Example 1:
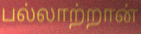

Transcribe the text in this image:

பல்லாற்றான்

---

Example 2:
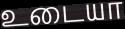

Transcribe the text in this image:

உடையா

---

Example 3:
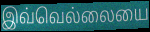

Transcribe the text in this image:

இவ்வெல்லையை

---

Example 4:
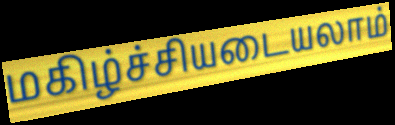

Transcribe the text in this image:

மகிழ்ச்சியடையலாம்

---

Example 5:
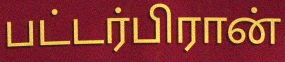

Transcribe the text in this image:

பட்டர்பிரான்